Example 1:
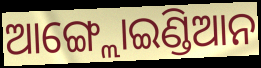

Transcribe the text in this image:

ଆଙ୍ଗ୍ଲୋଇଣ୍ଡିଆନ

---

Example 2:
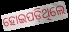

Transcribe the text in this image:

ହୋଇପଡ଼ିଥିଲେ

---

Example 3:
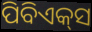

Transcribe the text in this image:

ପିବିଏକ୍‌ସ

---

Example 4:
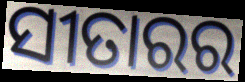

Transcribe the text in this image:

ସୀତାରର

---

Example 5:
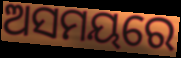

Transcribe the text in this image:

ଅସମୟରେ